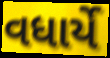
વધાર્યે